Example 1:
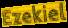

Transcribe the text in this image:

Ezekiel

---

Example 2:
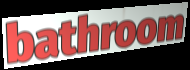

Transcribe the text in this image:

bathroom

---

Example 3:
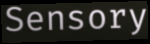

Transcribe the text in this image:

Sensory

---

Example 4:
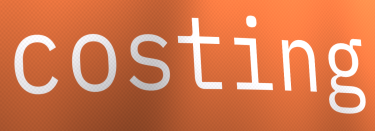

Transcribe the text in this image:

costing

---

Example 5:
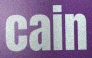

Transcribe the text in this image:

cain